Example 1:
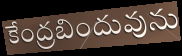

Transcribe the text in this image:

కేంద్రబిందువును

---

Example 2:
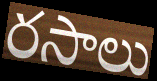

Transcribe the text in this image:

రసాలు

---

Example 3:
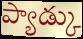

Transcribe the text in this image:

ప్యాడ్కు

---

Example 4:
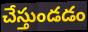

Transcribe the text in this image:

చేస్తుండడం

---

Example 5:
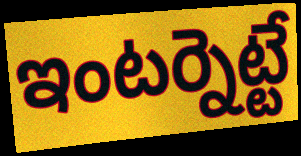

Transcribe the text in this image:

ఇంటర్నెట్టే